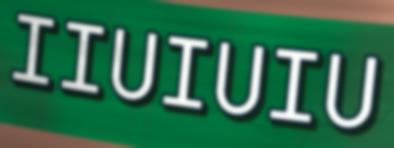
IIUIUIU